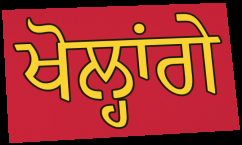
ਖੋਲ੍ਹਾਂਗੇ